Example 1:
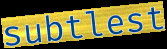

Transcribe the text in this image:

subtlest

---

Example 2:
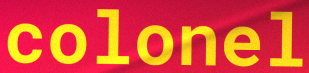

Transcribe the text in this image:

colonel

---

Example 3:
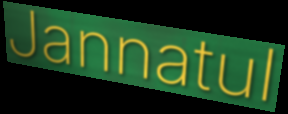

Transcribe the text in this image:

Jannatul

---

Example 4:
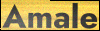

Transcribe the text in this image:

Amale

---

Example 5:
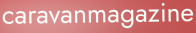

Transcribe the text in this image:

caravanmagazine